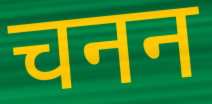
चनन